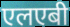
एलएबी